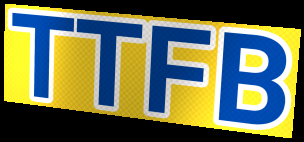
TTFB